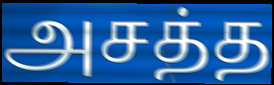
அசத்த